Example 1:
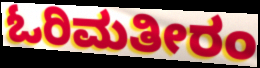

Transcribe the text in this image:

ಓರಿಮತೀರಂ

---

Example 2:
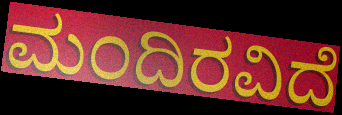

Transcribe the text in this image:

ಮಂದಿರವಿದೆ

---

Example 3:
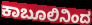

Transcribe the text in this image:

ಕಾಬೂಲಿನಿಂದ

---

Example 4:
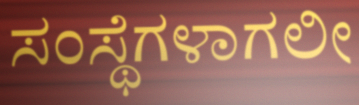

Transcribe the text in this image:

ಸಂಸ್ಥೆಗಳಾಗಲೀ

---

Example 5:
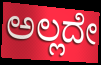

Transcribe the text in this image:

ಅಲ್ಲದೇ